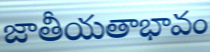
జాతీయతాభావం